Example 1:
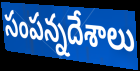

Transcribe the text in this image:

సంపన్నదేశాలు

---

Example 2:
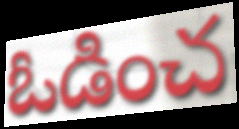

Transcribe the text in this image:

ఓడించ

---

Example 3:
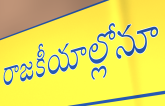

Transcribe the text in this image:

రాజకీయాల్లోనూ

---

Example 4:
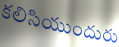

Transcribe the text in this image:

కలిసియుందురు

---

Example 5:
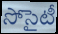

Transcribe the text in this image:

సోసైటీ